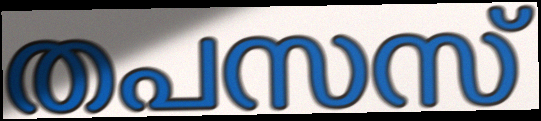
തപസസ്